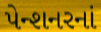
પેન્શનરનાં